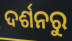
ଦର୍ଶନରୁ